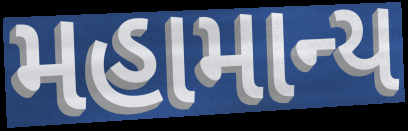
મહામાન્ય